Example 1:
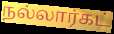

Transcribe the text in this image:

நல்லார்கட்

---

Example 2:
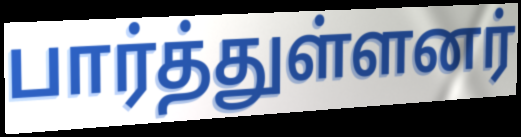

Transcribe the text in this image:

பார்த்துள்ளனர்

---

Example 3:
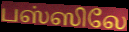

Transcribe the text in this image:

பஸ்ஸிலே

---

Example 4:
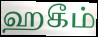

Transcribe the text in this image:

ஹகீம்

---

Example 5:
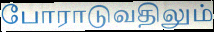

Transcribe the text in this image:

போராடுவதிலும்